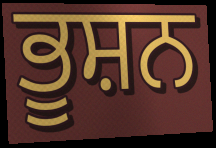
ਭੂਸ਼ਨ